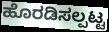
ಹೊರಡಿಸಲ್ಪಟ್ಟ